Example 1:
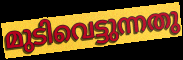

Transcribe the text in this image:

മുടിവെട്ടുന്നതു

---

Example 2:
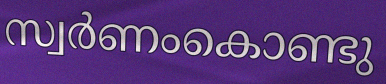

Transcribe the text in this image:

സ്വർണംകൊണ്ടു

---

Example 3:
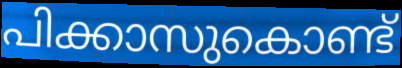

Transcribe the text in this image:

പിക്കാസുകൊണ്ട്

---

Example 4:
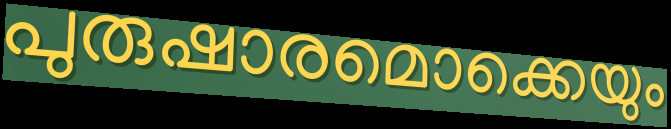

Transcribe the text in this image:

പുരുഷാരമൊക്കെയും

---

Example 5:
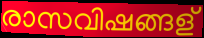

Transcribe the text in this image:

രാസവിഷങ്ങള്